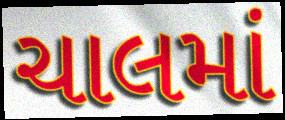
ચાલમાં